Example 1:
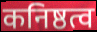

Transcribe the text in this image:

कनिष्ठत्व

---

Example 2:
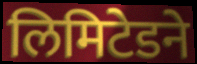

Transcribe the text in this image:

लिमिटेडने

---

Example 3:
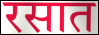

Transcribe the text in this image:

रसात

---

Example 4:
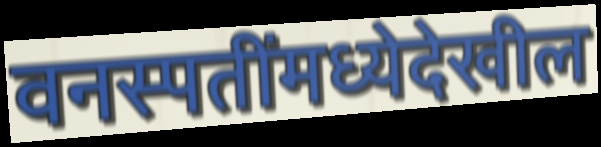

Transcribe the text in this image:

वनस्पतींमध्येदेखील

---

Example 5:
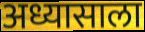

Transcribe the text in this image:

अध्यासाला